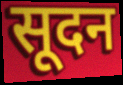
सूदन